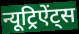
न्यूट्रिऐंट्स